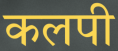
कलपी